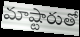
మాష్టారుతో